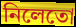
নিলেতো